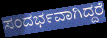
ಸಂದರ್ಭವಾಗಿದ್ದರೆ